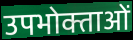
उपभोक्‍ताओं